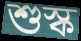
শুস্ক